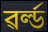
ৱৰ্ল্ড